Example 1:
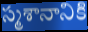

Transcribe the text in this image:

స్మశానానికి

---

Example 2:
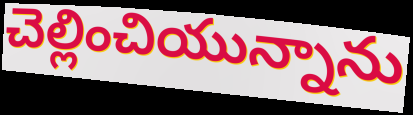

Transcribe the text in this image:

చెల్లించియున్నాను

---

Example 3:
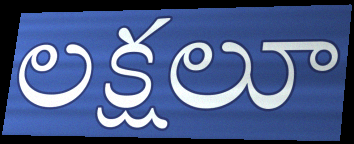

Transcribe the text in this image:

లక్షలూ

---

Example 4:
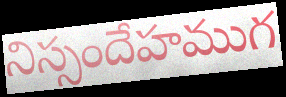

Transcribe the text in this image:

నిస్సందేహముగ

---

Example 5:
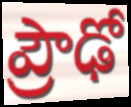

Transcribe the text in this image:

ప్రౌఢో